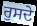
ਰੁਸਦੇ